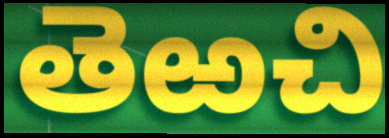
తెఱచి